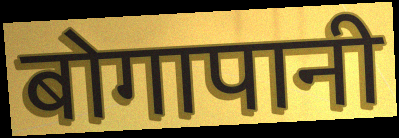
बोगापानी